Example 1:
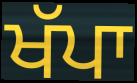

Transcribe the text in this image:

ਖੱਪਾ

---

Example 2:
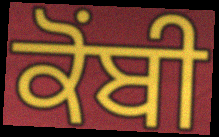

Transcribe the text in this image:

ਕੋਂਬੀ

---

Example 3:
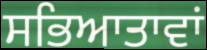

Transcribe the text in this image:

ਸਭਿਆਤਾਵਾਂ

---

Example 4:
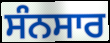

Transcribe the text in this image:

ਸੰਨਸਾਰ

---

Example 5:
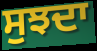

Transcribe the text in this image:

ਸੁਝਦਾ